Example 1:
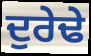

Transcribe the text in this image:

ਦੁਰੇਢੇ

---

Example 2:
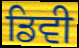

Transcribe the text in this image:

ਡਿਵੀ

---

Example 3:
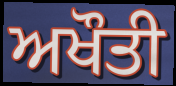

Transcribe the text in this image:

ਅਖੌਤੀ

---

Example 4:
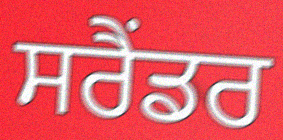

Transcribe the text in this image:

ਸਰੈਂਡਰ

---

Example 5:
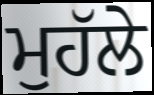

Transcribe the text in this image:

ਮੁਹੱਲੇ